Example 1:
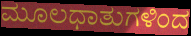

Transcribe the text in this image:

ಮೂಲಧಾತುಗಳಿಂದ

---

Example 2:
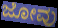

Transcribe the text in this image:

ಜೋವು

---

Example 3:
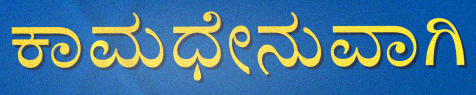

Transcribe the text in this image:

ಕಾಮಧೇನುವಾಗಿ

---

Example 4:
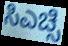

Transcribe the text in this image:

ಸಿಎಚ್ಸಿ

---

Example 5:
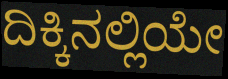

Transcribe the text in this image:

ದಿಕ್ಕಿನಲ್ಲಿಯೇ